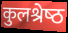
कुलश्रेष्‍ठ